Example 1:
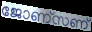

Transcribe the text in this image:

ജോണ്സണ്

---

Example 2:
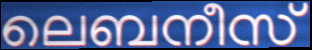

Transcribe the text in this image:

ലെബനീസ്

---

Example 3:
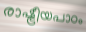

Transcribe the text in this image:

രാഷ്ട്രീയപാഠം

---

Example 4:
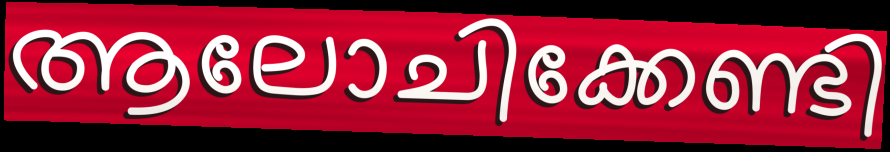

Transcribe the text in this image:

ആലോചിക്കേണ്ടി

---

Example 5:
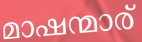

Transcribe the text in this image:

മാഷന്മാര്